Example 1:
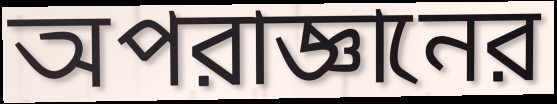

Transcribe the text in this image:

অপরাজ্ঞানের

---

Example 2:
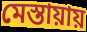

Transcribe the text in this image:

মেস্তায়ায়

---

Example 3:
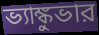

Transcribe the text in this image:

ভ্যাঙ্কুভার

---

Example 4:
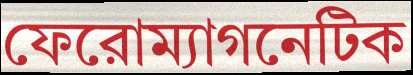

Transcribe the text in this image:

ফেরোম্যাগনেটিক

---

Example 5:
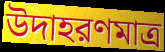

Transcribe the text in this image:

উদাহরণমাত্র